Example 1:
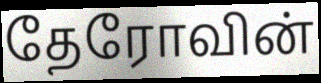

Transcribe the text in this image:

தேரோவின்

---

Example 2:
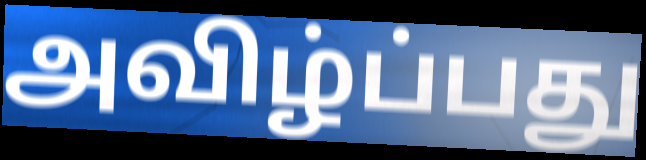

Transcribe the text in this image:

அவிழ்ப்பது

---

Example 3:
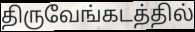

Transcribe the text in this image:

திருவேங்கடத்தில்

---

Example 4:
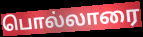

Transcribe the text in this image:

பொல்லாரை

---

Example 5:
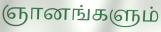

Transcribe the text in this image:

ஞானங்களும்